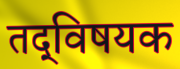
तद्‌विषयक